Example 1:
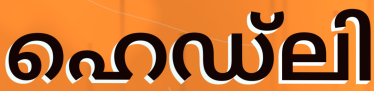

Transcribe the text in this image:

ഹെഡ്ലി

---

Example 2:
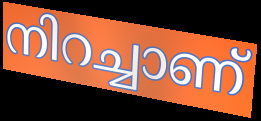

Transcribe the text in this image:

നിറച്ചാണ്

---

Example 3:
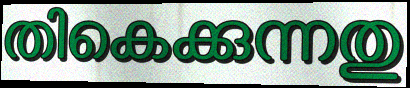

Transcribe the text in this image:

തികെക്കുന്നതു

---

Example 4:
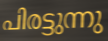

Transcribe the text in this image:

പിരട്ടുന്നു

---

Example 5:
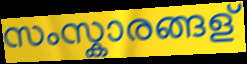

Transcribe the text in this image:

സംസ്കാരങ്ങള്